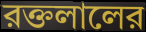
রক্তলালের